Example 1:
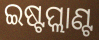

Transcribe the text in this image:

ଇଷ୍ଟପ୍ଲାଣ୍ଟ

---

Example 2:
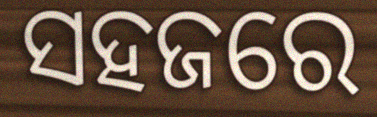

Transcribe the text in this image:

ସହଜରେ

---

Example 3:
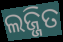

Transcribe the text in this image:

ଲଜ୍ଜିତ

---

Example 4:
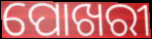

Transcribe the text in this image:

ପୋଖରୀ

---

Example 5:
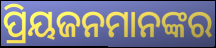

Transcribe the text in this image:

ପ୍ରିୟଜନମାନଙ୍କର